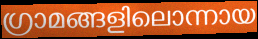
ഗ്രാമങ്ങളിലൊന്നായ